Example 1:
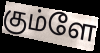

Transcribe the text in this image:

கும்ளே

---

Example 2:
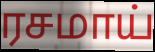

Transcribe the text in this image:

ரசமாய்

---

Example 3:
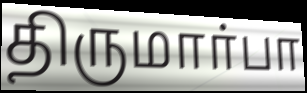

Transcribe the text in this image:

திருமார்பா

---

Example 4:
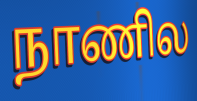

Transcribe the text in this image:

நாணில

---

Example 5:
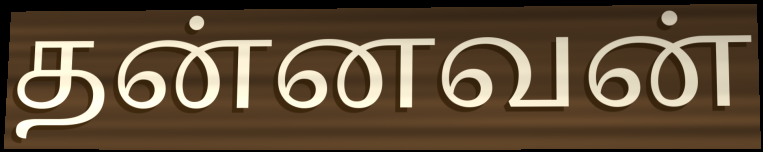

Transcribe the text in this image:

தன்னவன்